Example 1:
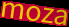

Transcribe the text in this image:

moza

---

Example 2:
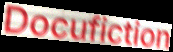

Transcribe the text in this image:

Docufiction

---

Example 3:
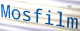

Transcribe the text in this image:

Mosfilm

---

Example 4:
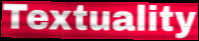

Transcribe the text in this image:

Textuality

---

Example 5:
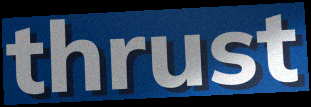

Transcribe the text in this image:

thrust